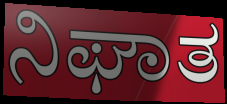
ನಿಘಾತ